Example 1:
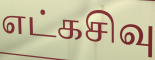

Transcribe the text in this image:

எட்கசிவு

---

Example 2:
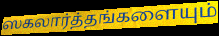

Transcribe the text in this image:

ஸகலார்த்தங்களையும்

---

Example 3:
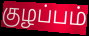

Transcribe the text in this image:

குழப்பம்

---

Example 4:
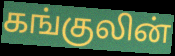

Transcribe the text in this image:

கங்குலின்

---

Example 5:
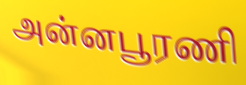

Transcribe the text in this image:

அன்னபூரணி